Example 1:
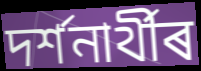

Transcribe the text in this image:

দৰ্শনাৰ্থীৰ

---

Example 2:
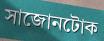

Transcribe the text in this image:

সাজোনটোক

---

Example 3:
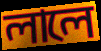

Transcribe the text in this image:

লালে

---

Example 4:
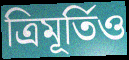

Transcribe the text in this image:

ত্ৰিমূৰ্তিও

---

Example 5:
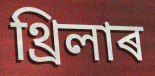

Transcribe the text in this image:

থ্ৰিলাৰ